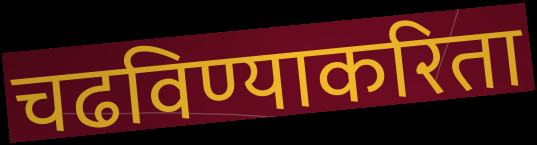
चढविण्याकरिता